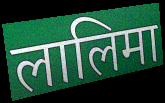
लालिमा